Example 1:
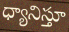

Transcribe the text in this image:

ధ్యానిస్తూ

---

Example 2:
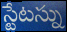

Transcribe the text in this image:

స్టేటస్ను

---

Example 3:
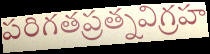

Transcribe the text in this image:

పరిగతప్రత్నవిగ్రహ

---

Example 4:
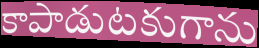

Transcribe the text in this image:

కాపాడుటకుగాను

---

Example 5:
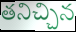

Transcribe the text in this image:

తనిచ్చిన